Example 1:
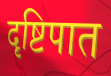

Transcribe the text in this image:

दृष्टिपात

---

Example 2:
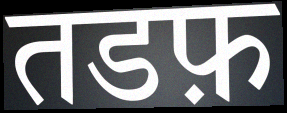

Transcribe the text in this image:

तडफ़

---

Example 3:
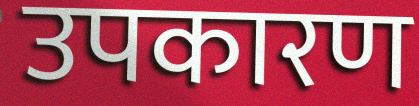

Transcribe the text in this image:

उपकारण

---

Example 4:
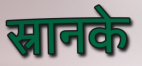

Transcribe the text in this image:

स्रानके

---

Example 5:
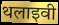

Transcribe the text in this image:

थलाइवी